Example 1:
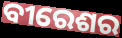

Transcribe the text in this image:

ବୀରେଶର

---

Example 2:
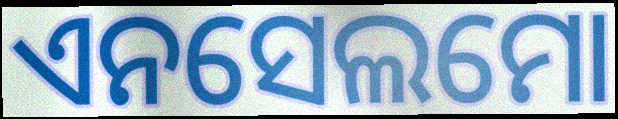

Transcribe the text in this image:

ଏନସେଲମୋ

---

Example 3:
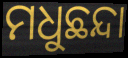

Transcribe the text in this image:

ମଧୁଛନ୍ଦା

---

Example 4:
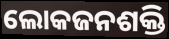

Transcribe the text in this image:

ଲୋକଜନଶକ୍ତି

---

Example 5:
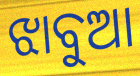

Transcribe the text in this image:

ଝାବୁଆ